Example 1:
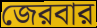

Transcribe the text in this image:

জেরবার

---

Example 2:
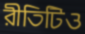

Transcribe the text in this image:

রীতিটিও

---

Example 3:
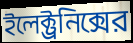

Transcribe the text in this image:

ইলেক্ট্রনিক্সের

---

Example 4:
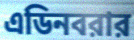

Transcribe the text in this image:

এডিনবরার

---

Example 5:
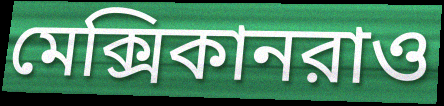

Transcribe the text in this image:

মেক্সিকানরাও